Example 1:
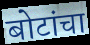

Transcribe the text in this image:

बोटांचा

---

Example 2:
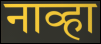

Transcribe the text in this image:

नाव्हा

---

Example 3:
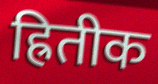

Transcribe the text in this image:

ह्रितीक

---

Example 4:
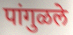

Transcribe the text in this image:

पांगुळले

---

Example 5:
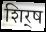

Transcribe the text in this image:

शिर्ष